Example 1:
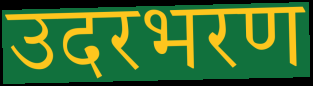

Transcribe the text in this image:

उदरभरण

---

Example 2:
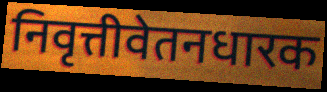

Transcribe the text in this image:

निवृत्तीवेतनधारक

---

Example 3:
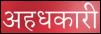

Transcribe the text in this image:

अहधकारी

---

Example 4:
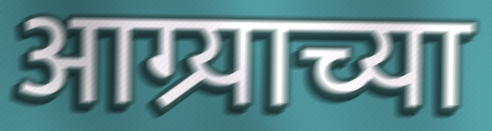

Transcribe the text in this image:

आग्र्याच्या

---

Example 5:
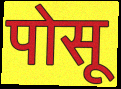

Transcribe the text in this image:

पोसू